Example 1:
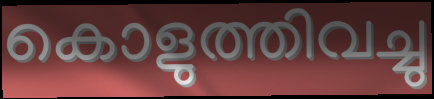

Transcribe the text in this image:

കൊളുത്തിവച്ചു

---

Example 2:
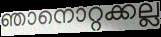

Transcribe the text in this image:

ഞാനൊറ്റക്കല്ല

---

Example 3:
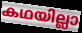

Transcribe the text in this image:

കഥയില്ലാ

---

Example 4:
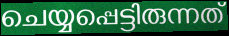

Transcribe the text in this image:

ചെയ്യപ്പെട്ടിരുന്നത്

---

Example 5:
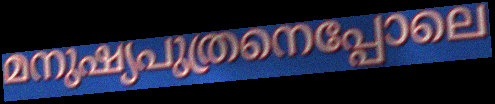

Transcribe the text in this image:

മനുഷ്യപുത്രനെപ്പോലെ